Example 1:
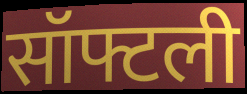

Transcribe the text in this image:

सॉफ्टली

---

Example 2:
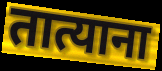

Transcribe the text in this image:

तात्याना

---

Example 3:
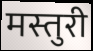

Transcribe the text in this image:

मस्तुरी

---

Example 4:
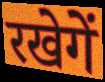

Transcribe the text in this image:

रखेगें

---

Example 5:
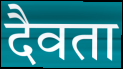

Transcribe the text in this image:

दैवता